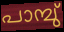
പാമ്പു്